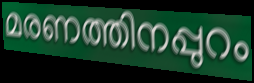
മരണത്തിനപ്പുറം